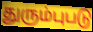
துரும்புபடு